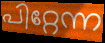
പിറ്റേന്ന